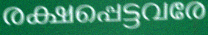
രക്ഷപ്പെട്ടവരേ